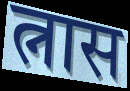
त्नास